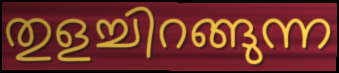
തുളച്ചിറങ്ങുന്ന